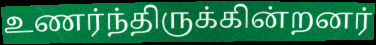
உணர்ந்திருக்கின்றனர்